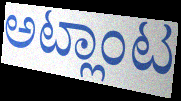
ಅಟ್ಲಾಂಟ